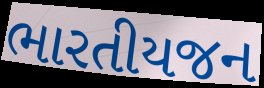
ભારતીયજન